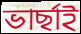
ভাৰ্ছাই